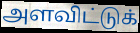
அளவிட்டுக்